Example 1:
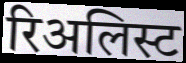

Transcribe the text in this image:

रिअलिस्ट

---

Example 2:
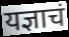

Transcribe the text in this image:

यज्ञाचं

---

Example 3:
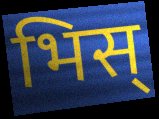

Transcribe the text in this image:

भिस्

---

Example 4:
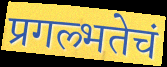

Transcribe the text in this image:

प्रगल्भतेचं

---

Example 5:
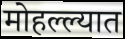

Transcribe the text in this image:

मोहल्ल्यात